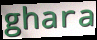
ghara